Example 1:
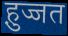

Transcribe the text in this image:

ह़ुज्जत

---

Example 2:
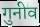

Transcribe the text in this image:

गुनीव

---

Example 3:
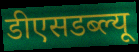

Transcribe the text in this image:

डीएसडब्ल्यू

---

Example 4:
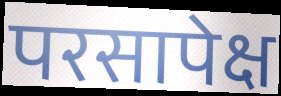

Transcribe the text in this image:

परसापेक्ष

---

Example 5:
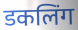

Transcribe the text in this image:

डकलिंग